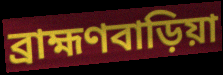
ব্রাহ্মণবাড়িয়া